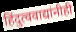
हिंदुत्ववाद्यांनीही